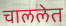
चाललेत